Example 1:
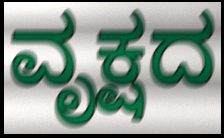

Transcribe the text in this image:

ವೃಕ್ಷದ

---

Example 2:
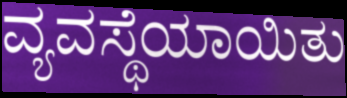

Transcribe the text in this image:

ವ್ಯವಸ್ಥೆಯಾಯಿತು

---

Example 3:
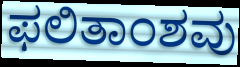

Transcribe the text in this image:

ಫಲಿತಾಂಶವು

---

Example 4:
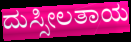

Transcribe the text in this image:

ದುಸ್ಸೀಲತಾಯ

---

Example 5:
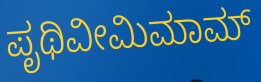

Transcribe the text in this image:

ಪೃಥಿವೀಮಿಮಾಮ್